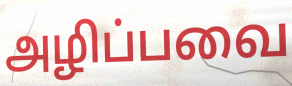
அழிப்பவை